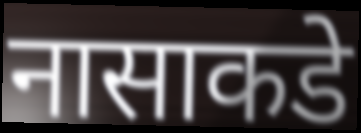
नासाकडे